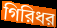
গিরিধর